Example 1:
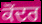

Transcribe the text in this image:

ਕੋਂਦਰ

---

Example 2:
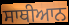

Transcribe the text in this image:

ਸਾਥੀਆਨ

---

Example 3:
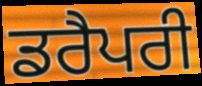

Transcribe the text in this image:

ਡਰੈਪਰੀ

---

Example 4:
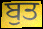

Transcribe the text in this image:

ਬੁਤ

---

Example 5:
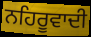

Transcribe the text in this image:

ਨਹਿਰੂਵਾਦੀ